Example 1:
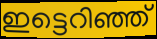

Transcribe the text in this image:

ഇട്ടെറിഞ്ഞ്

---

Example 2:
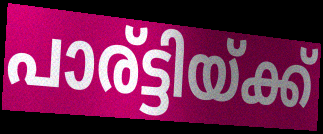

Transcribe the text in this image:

പാര്ട്ടിയ്ക്ക്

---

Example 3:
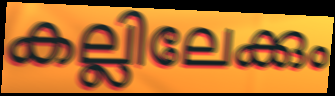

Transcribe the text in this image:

കല്ലിലേക്കും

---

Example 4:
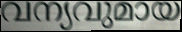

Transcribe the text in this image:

വന്യവുമായ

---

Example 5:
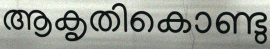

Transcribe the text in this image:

ആകൃതികൊണ്ടു